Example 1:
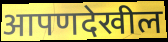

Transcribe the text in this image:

आपणदेखील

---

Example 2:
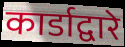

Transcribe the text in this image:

कार्डाद्वारे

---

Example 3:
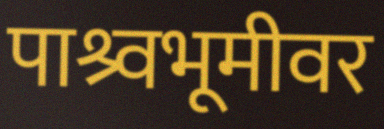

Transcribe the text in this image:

पाश्र्वभूमीवर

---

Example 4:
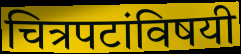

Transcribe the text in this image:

चित्रपटांविषयी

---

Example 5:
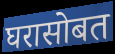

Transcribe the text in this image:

घरासोबत